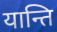
यान्ति